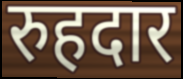
रुहदार